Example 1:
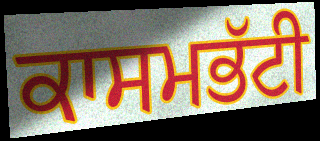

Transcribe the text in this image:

ਕਾਸਮਭੱਟੀ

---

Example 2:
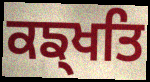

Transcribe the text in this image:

ਕਙ੍ਖਤਿ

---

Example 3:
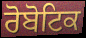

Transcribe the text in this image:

ਰੋਬੋਟਿਕ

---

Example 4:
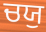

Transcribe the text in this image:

ਚਯੁ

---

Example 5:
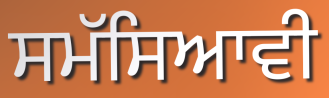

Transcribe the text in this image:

ਸਮੱਸਿਆਵੀ